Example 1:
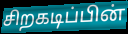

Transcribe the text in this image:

சிறகடிப்பின்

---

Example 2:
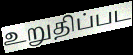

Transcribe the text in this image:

உறுதிப்பட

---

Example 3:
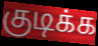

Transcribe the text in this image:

குடிக்க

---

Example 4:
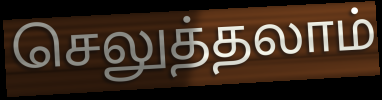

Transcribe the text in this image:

செலுத்தலாம்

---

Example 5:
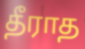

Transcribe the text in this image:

தீராத